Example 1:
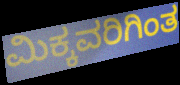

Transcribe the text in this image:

ಮಿಕ್ಕವರಿಗಿಂತ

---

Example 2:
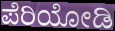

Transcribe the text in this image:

ಪೆರಿಯೋಡಿ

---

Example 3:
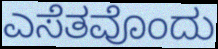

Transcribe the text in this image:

ಎಸೆತವೊಂದು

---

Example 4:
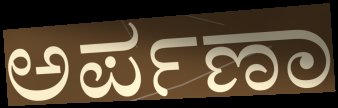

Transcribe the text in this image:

ಅರ್ಪಣಾ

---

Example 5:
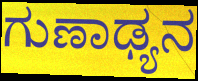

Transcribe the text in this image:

ಗುಣಾಢ್ಯನ